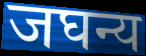
जघन्‍य